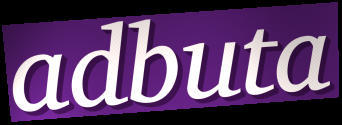
adbuta